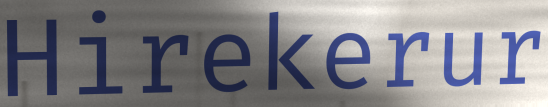
Hirekerur